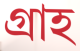
গ্রাহ